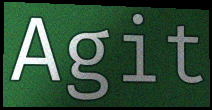
Agit